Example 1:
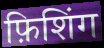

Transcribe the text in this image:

फ़िशिंग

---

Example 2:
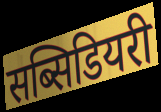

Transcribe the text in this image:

सब्सिडियरी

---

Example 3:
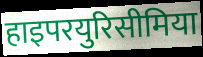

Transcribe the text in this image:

हाइपरयुरिसीमिया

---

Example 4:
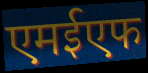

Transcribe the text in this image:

एमईएफ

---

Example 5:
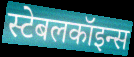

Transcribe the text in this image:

स्टेबलकॉइन्स